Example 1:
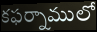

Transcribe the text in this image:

కఫర్నాములో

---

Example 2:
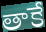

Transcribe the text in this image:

తాకే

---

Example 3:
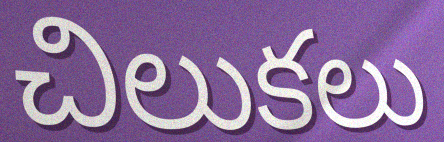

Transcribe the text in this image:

చిలుకలు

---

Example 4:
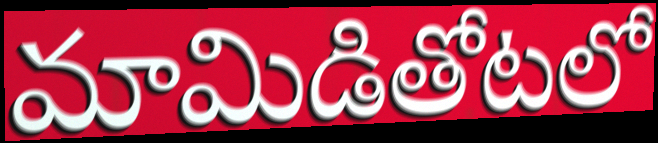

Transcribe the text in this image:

మామిడితోటలో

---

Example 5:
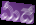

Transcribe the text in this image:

మీదే